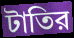
টাতির